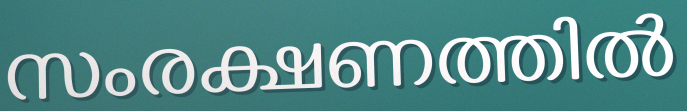
സംരക്ഷണത്തിൽ